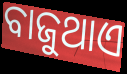
ବାଜୁଥାଏ